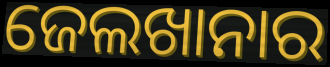
ଜେଲଖାନାର